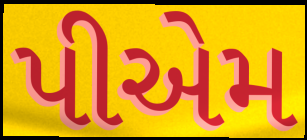
પીએમ